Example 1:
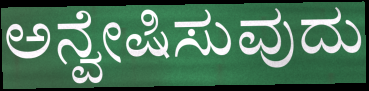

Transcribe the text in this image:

ಅನ್ವೇಷಿಸುವುದು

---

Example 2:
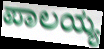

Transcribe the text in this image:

ಪಾಲಯ್ಯ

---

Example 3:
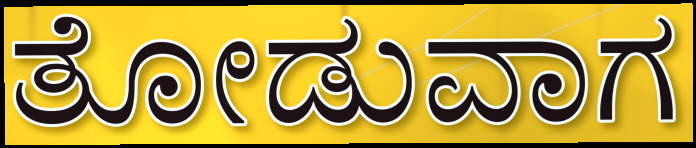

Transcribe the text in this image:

ತೋಡುವಾಗ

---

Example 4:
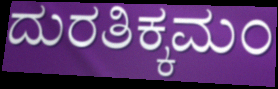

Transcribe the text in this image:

ದುರತಿಕ್ಕಮಂ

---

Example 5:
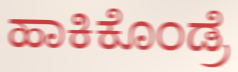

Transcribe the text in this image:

ಹಾಕಿಕೊಂಡ್ರೆ